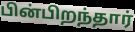
பின்பிறந்தார்